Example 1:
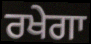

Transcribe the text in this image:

ਰਖੇਗਾ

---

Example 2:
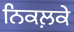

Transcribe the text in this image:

ਨਿਕਲ਼ਕੇ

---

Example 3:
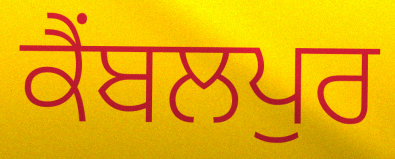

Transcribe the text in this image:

ਕੈਂਬਲਪੁਰ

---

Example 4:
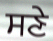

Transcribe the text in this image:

ਸਣੇ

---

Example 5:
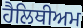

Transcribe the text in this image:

ਹੈਲਿਥੀਅਮ